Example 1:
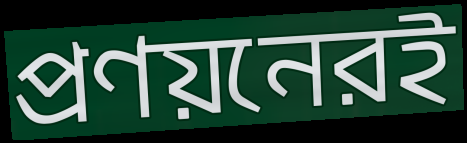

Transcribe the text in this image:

প্রণয়নেরই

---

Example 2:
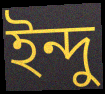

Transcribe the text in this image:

ইন্দু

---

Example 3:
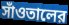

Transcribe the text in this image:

সাঁওতালের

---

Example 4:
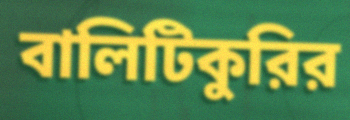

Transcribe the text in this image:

বালিটিকুরির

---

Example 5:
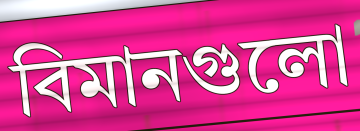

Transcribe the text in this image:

বিমানগুলো